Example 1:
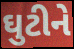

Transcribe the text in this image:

ઘુટીને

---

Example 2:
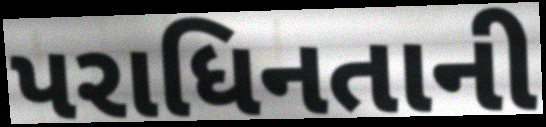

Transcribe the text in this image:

પરાધિનતાની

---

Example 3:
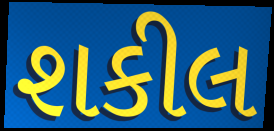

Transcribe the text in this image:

શકીલ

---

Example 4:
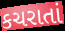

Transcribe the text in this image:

કચરાતાં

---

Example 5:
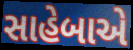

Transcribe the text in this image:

સાહેબાએ